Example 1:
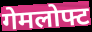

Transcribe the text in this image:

गेमलोफ्ट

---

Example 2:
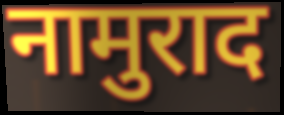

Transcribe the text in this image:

नामुराद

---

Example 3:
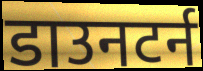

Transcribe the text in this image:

डाउनटर्न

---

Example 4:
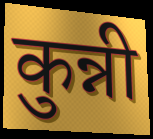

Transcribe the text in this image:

कुन्नी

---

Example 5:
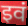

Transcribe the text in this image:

इवं